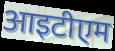
आइटीएम